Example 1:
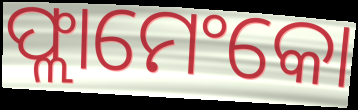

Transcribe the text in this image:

ଫ୍ଲାମେଂକୋ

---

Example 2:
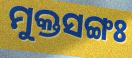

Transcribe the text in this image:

ମୁକ୍ତସଙ୍ଗଃ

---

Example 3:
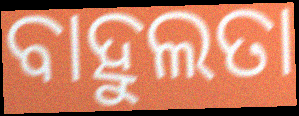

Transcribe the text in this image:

ବାହୁଲତା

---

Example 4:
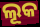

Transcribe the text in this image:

ଲୂକ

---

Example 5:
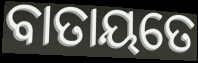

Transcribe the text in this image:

ବାତାୟତେ